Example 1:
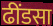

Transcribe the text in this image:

ढींडसा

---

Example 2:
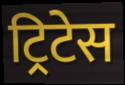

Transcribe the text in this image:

ट्रिटेस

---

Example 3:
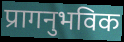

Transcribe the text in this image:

प्रागनुभविक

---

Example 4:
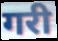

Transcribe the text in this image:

गरी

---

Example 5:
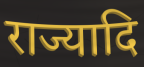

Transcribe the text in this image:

राज्यादि